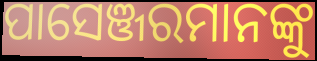
ପାସେଞ୍ଜରମାନଙ୍କୁ